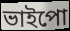
ভাইপো